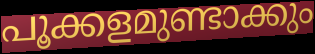
പൂക്കളമുണ്ടാക്കും